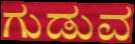
ಗುಡುವ